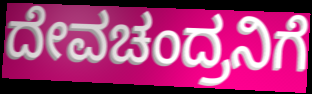
ದೇವಚಂದ್ರನಿಗೆ